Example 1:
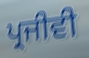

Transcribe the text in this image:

ਪ੍ਰਜੀਵੀ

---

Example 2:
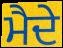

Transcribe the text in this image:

ਮੈਦੇ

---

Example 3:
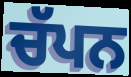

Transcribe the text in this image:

ਚੱਪਨ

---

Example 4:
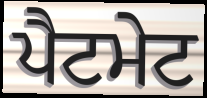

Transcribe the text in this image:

ਪੈਟਮੇਟ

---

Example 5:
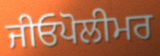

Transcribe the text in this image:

ਜੀਓਪੋਲੀਮਰ